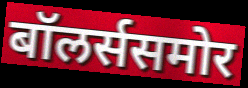
बॉलर्ससमोर